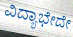
ವಿದ್ಯಾಭೇದೇ